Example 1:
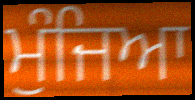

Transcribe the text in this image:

ਮੁੰਜਿਆ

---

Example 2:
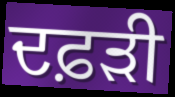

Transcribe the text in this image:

ਦਫ਼ੜੀ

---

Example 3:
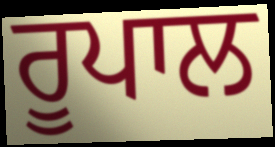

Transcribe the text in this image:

ਰੂਪਾਲ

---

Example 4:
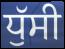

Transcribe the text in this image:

ਧੁੱਸੀ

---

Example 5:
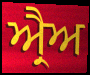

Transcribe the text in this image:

ਅ੍ਰੈਅ